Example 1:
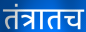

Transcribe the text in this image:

तंत्रातच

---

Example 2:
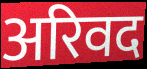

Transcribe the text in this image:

अरिवद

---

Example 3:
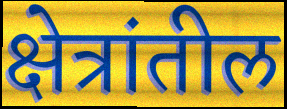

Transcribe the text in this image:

क्षेत्रांतील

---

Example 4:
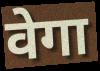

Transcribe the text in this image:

वेगा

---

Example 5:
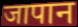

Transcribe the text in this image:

जापान